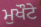
ਮੁਖੌਟੇ